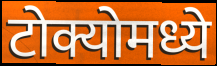
टोक्योमध्ये